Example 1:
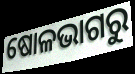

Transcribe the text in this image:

ଷୋଳଭାଗରୁ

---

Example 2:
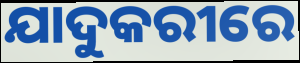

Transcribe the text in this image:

ଯାଦୁକରୀରେ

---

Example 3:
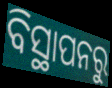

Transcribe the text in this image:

ବିସ୍ଥାପନରୁ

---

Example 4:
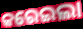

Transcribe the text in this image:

କରେଇଲା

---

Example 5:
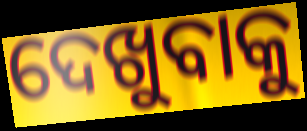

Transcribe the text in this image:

ଦେଖୁବାକୁ